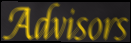
Advisors